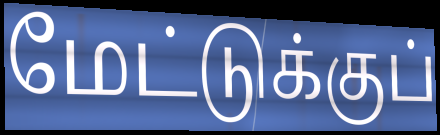
மேட்டுக்குப்